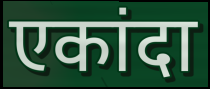
एकांदा